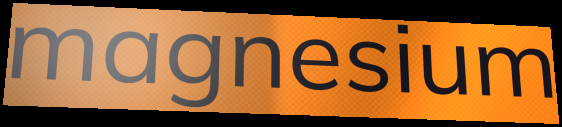
magnesium